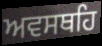
ਅਵਸਥਹਿ